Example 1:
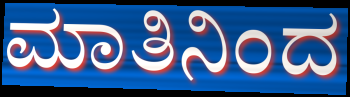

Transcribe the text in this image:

ಮಾತಿನಿಂದ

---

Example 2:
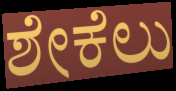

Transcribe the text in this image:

ಶೇಕೆಲು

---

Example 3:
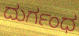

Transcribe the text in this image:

ದುರ್ಗಂಧ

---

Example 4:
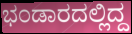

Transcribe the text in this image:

ಭಂಡಾರದಲ್ಲಿದ್ದ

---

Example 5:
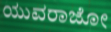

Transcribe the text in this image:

ಯುವರಾಜೋ